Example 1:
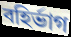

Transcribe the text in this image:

বহির্ভাগ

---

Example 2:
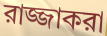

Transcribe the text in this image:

রাজ্জাকরা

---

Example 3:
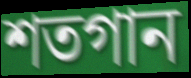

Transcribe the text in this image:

শতগান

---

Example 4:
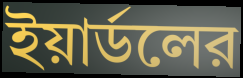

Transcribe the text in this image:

ইয়ার্ডলের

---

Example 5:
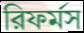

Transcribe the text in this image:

রিফর্মস